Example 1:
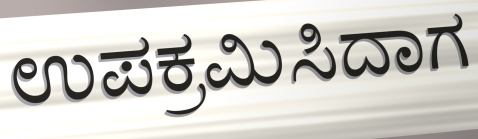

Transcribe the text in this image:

ಉಪಕ್ರಮಿಸಿದಾಗ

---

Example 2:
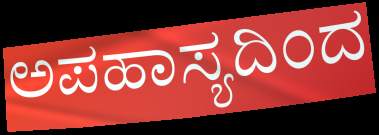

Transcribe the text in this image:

ಅಪಹಾಸ್ಯದಿಂದ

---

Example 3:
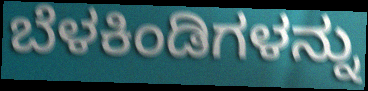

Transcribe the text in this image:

ಬೆಳಕಿಂಡಿಗಳನ್ನು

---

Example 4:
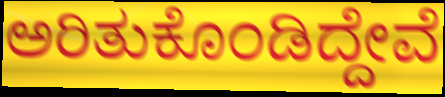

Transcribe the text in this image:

ಅರಿತುಕೊಂಡಿದ್ದೇವೆ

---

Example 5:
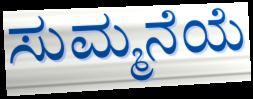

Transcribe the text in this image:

ಸುಮ್ಮನೆಯೆ